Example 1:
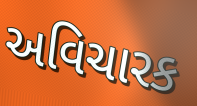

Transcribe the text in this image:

અવિચારક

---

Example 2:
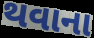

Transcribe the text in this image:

થવાના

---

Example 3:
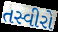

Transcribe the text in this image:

તસ્વીરો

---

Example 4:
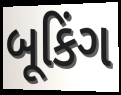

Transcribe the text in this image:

બૂકિંગ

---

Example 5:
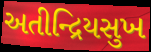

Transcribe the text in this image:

અતીન્દ્રિયસુખ